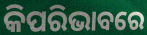
କିପରିଭାବରେ